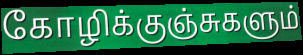
கோழிக்குஞ்சுகளும்